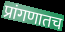
प्रांगणातच